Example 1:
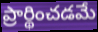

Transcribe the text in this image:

ప్రార్థించడమే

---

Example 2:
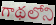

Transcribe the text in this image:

గాథలోని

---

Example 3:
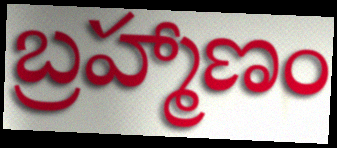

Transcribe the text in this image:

బ్రహ్మాణం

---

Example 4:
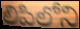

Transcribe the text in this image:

లిపిలోని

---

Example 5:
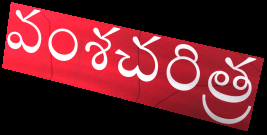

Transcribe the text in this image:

వంశచరిత్ర